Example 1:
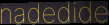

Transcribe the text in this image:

nadedide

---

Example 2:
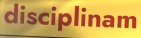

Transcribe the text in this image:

disciplinam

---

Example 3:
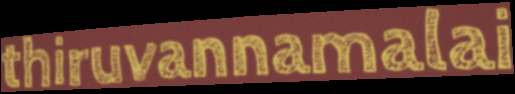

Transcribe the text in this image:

thiruvannamalai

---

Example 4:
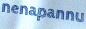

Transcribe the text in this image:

nenapannu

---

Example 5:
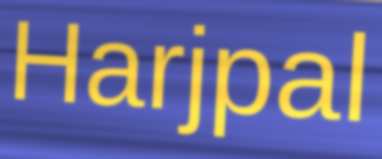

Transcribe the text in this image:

Harjpal